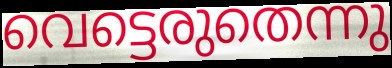
വെട്ടെരുതെന്നു